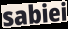
sabiei